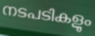
നടപടികളും